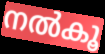
നൽകൂ